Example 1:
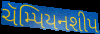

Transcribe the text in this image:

ચૅમ્પિયનશીપ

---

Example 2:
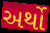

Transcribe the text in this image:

અર્થો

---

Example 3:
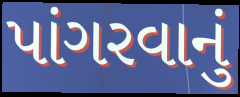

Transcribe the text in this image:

પાંગરવાનું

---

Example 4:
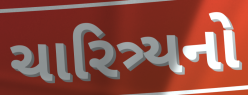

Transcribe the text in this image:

ચારિત્ર્યનો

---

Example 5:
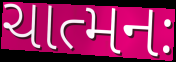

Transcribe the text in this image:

ચાત્મનઃ